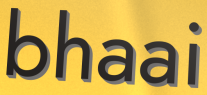
bhaai